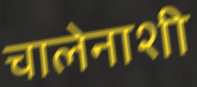
चालेनाशी